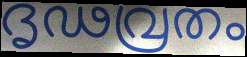
ദൃഢവ്രതം